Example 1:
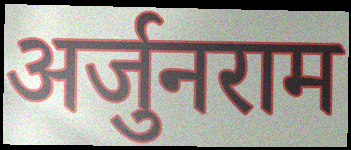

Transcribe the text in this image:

अर्जुनराम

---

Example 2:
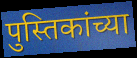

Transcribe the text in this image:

पुस्तिकांच्या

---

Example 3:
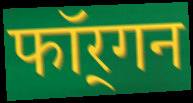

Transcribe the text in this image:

फॉर्गन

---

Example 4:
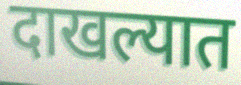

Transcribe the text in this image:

दाखल्यात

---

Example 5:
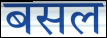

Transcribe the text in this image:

बसल